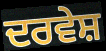
ਦਰਵੇਸ਼